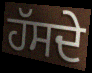
ਹੱਸਦੇ